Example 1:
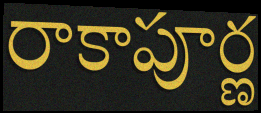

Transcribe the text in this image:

రాకాపూర్ణ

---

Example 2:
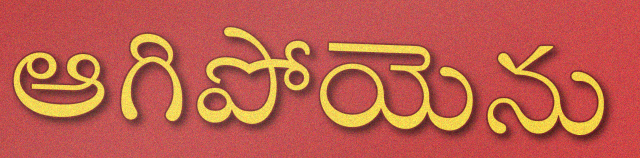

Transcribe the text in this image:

ఆగిపోయెను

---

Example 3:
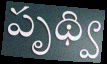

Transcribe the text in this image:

పృథ్వి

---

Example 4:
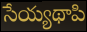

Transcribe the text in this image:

సేయ్యథాపి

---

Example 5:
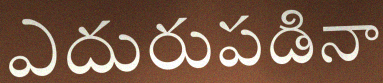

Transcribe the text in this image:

ఎదురుపడినా